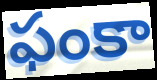
ఫంకా